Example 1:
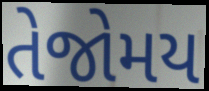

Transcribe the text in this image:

તેજોમય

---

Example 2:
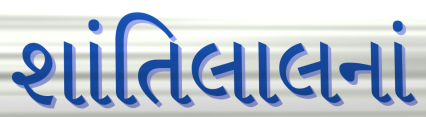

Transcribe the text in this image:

શાંતિલાલનાં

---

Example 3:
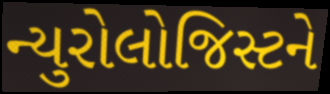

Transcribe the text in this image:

ન્યુરોલોજિસ્ટને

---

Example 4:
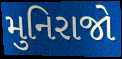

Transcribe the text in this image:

મુનિરાજો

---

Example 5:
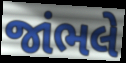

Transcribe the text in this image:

જાંભલે